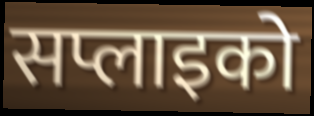
सप्लाइको